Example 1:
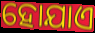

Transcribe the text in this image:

ହୋଯାଏ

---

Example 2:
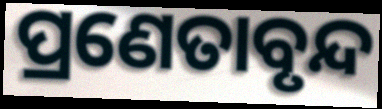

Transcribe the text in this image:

ପ୍ରଣେତାବୃନ୍ଦ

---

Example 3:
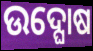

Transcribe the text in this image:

ଉଦ୍ଘୋଷ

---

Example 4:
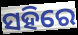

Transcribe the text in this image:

ସହିରେ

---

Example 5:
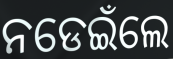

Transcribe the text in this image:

ନଡେଇଁଲେ